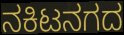
ನಕಿಟನಗದ